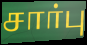
சார்பு